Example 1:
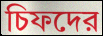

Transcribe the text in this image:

চিফদের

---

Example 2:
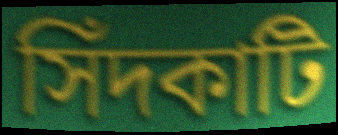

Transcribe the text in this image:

সিঁদকাটি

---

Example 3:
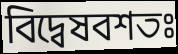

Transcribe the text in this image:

বিদ্বেষবশতঃ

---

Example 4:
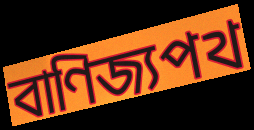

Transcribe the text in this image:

বাণিজ্যপথ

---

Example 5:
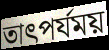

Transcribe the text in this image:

তাৎপর্যময়